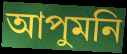
আপুমনি